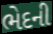
ભેદની